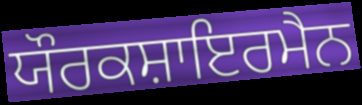
ਯੌਰਕਸ਼ਾਇਰਮੈਨ